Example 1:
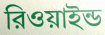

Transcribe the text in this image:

রিওয়াইন্ড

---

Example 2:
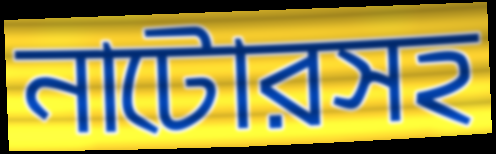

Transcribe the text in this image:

নাটোরসহ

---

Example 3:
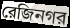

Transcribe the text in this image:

রেজিনগর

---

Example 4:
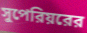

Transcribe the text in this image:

সুপেরিয়রের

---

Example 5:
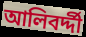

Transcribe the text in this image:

আলিবর্দ্দী